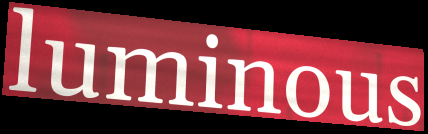
luminous